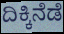
ದಿಕ್ಕಿನೆಡೆ